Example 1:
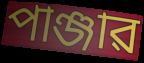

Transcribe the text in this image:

পাঞ্জাৱ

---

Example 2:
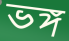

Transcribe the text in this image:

ভঙ্গ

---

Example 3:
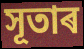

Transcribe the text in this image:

সূতাৰ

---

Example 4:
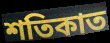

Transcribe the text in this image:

শতিকাত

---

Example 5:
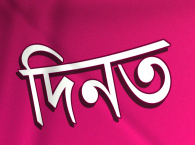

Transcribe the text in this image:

দিনত